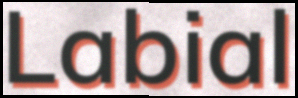
Labial